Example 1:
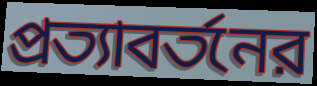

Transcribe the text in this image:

প্রত্যাবর্তনের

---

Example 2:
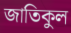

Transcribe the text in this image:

জাতিকুল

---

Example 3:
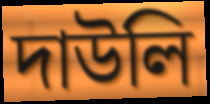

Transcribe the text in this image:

দাউলি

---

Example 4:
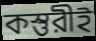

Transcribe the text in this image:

কস্তুরীই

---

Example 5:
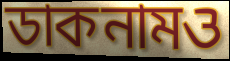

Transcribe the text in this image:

ডাকনামও